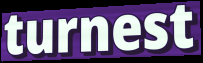
turnest